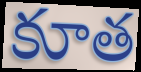
కూత